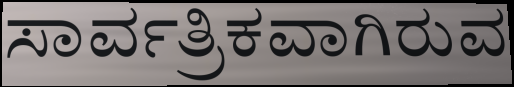
ಸಾರ್ವತ್ರಿಕವಾಗಿರುವ